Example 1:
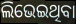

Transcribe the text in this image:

ଲିଭେଇଥିବା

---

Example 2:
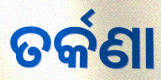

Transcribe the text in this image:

ତର୍କଣା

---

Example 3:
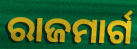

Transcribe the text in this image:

ରାଜମାର୍ଗ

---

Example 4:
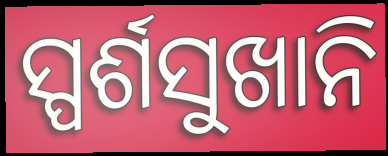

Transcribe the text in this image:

ସ୍ପର୍ଶସୁଖାନି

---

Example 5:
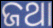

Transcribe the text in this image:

ଜଥା